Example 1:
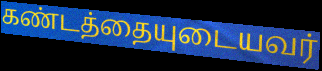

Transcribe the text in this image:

கண்டத்தையுடையவர்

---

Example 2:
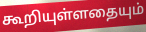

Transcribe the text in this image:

கூறியுள்ளதையும்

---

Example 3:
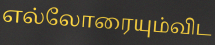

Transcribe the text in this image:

எல்லோரையும்விட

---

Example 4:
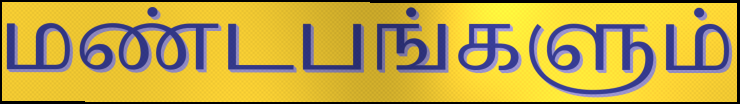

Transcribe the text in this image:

மண்டபங்களும்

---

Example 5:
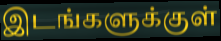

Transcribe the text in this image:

இடங்களுக்குள்